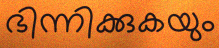
ഭിന്നിക്കുകയും